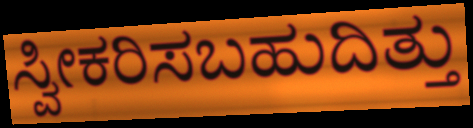
ಸ್ವೀಕರಿಸಬಹುದಿತ್ತು